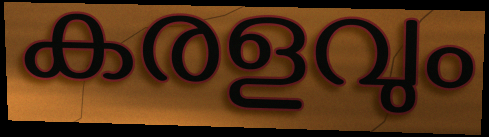
കരളവും